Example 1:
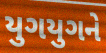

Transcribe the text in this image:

યુગયુગને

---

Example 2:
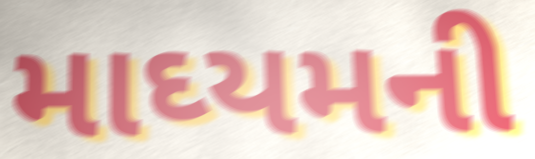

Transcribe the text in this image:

માઘ્યમની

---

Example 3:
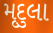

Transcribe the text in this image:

મૃદુલા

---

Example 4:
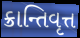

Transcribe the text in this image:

ક્રાન્તિવૃત્ત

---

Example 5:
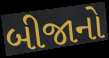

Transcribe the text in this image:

બીજાનો